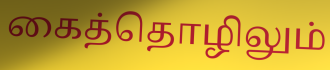
கைத்தொழிலும்